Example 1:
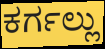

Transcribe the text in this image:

ಕರ್ಗಲ್ಲು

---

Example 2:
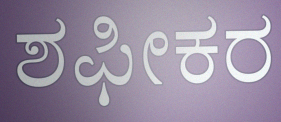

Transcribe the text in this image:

ಶಫೀಕರ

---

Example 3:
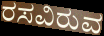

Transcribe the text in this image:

ರಸವಿರುವ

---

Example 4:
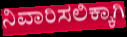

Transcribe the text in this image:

ನಿವಾರಿಸಲಿಕ್ಕಾಗಿ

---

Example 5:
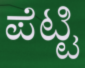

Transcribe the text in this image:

ಪೆಟ್ಟಿ